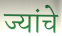
ज्यांचे